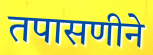
तपासणीने